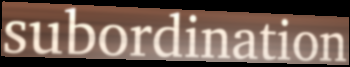
subordination